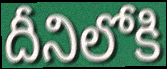
దీనిలోకి